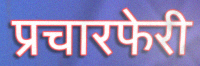
प्रचारफेरी